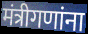
मंत्रीगणांना